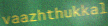
vaazhthukkal